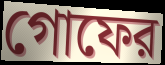
গোফের